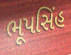
ભૂપસિંહ